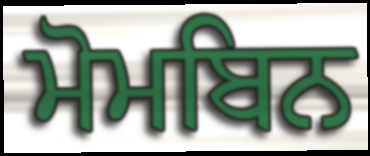
ਮੋਮਬਿਨ